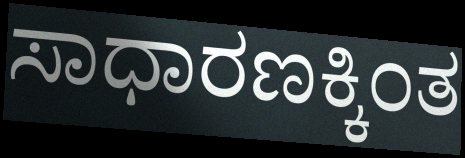
ಸಾಧಾರಣಕ್ಕಿಂತ